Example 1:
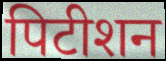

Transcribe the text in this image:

पिटीशन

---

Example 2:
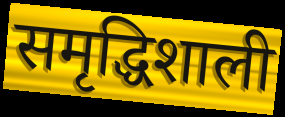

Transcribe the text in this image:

समृद्धिशाली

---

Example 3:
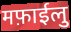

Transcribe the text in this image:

मफ़ाईलु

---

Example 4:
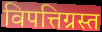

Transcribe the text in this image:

विपत्तिग्रस्त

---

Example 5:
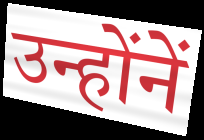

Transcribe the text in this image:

उन्‍होंनें